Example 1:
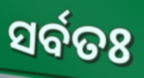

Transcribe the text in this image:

ସର୍ବତଃ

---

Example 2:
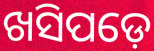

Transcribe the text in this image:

ଖସିପଡ଼େ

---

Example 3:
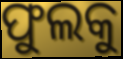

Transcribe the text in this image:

ଫୁଲକୁ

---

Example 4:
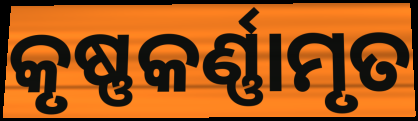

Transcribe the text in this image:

କୃଷ୍ଣକର୍ଣ୍ଣାମୃତ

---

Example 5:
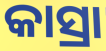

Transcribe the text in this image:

କାସ୍ରା